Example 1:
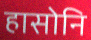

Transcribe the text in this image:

हासोनि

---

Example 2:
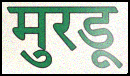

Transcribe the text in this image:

मुरडू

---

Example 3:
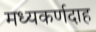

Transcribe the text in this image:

मध्यकर्णदाह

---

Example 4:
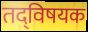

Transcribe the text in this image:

तद्‌विषयक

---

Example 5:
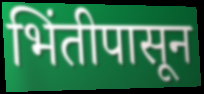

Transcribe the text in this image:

भिंतीपासून